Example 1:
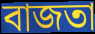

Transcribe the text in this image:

বাজতা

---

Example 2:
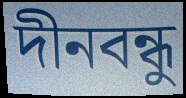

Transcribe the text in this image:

দীনবন্ধু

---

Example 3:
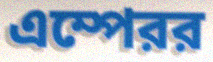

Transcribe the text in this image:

এম্পেরর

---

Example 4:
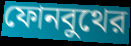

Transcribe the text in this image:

ফোনবুথের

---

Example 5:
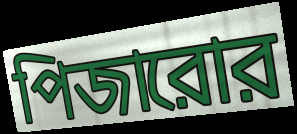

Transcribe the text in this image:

পিজারোর